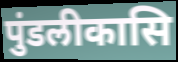
पुंडलीकासि